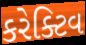
કરેક્ટિવ